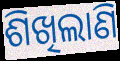
ଶିଖିଲାଣି